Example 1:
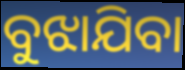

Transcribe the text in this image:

ବୁଝାଯିବା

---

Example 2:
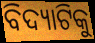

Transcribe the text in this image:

ବିଦ୍ୟାଟିକୁ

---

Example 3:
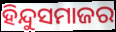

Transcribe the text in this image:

ହିନ୍ଦୁସମାଜର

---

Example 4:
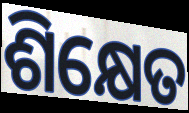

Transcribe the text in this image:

ଶିକ୍ଷେତ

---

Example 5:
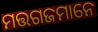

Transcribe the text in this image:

ମତ୍ତଗଜମାନେ